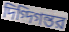
দিগ্দিগন্তর